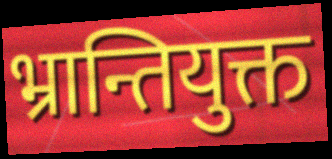
भ्रान्तियुक्त